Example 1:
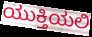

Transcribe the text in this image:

ಯುಕ್ತಿಯಲಿ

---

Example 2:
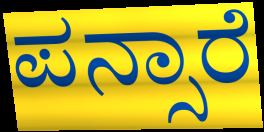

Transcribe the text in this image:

ಪನ್ಸಾರೆ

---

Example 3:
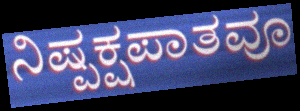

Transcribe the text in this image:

ನಿಷ್ಪಕ್ಷಪಾತವೂ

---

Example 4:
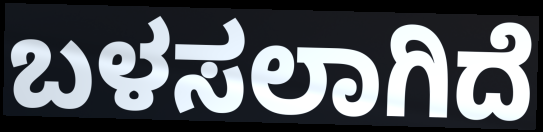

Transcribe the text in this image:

ಬಳಸಲಾಗಿದೆ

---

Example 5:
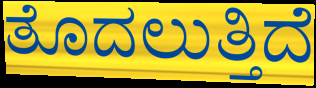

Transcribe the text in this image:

ತೊದಲುತ್ತಿದೆ